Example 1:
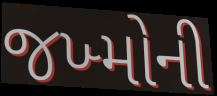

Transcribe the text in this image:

જખ્મોની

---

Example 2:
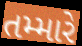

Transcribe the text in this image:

તમ્મારે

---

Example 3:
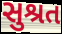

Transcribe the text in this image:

સુશ્રત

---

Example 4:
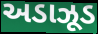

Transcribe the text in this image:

અડાઝૂડ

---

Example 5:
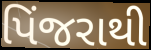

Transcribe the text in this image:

પિંજરાથી